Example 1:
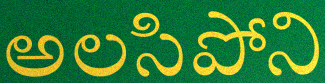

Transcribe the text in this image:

అలసిపోని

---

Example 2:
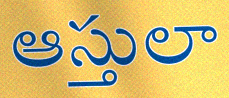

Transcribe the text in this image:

ఆస్తులా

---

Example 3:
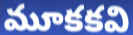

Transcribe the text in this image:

మూకకవి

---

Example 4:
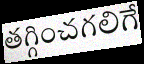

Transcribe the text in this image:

తగ్గించగలిగే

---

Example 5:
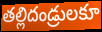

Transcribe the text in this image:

తల్లిదండ్రులకూ